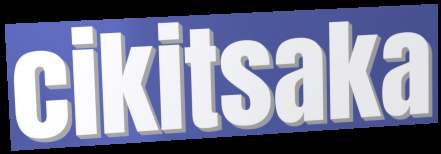
cikitsaka